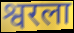
श्वरला